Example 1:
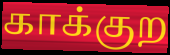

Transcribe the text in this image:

காக்குற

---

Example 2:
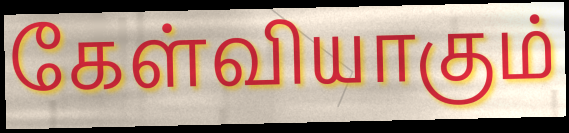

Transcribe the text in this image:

கேள்வியாகும்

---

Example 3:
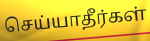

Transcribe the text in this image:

செய்யாதீர்கள்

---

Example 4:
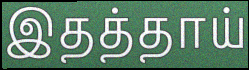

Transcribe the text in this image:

இதத்தாய்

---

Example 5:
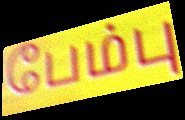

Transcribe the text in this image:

பேம்பு